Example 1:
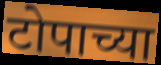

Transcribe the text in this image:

टोपाच्या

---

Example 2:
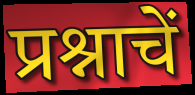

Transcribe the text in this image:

प्रश्नाचें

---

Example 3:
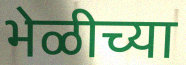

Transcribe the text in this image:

भेळीच्या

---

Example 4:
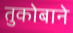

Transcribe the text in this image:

तुकोबाने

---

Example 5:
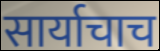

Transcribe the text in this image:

सार्याचाच